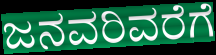
ಜನವರಿವರೆಗೆ